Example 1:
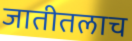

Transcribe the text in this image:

जातीतलाच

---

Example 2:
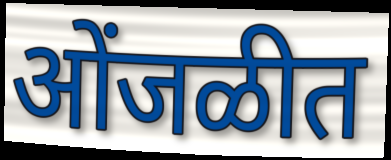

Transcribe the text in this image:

ओंजळीत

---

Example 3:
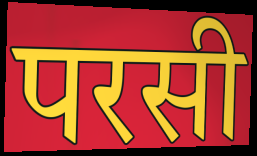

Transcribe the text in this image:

परसी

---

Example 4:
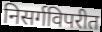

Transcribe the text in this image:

निसर्गविपरीत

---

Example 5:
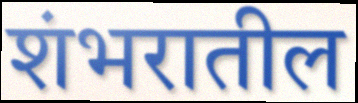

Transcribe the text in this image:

शंभरातील